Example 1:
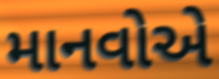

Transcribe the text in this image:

માનવોએ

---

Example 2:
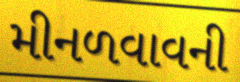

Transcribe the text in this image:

મીનળવાવની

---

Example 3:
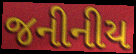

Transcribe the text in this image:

જનીનીય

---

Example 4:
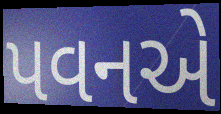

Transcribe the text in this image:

પવનએ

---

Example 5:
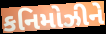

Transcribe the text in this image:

કનિમોઝીને